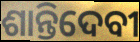
ଶାନ୍ତିଦେବୀ